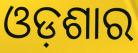
ଓଡ଼ଶାର